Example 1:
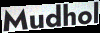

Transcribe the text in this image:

Mudhol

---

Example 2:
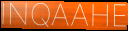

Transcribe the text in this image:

INQAAHE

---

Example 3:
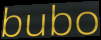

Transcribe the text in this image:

bubo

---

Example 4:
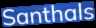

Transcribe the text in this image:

Santhals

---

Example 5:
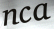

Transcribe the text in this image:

nca